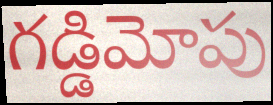
గడ్డిమోపు